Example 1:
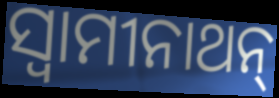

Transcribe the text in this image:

ସ୍ୱାମୀନାଥନ୍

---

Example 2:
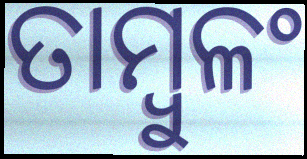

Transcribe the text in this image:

ତାମ୍ବୁଳଂ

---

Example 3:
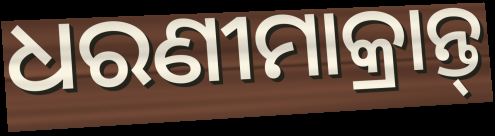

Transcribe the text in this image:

ଧରଣୀମାକ୍ରାନ୍ତ୍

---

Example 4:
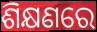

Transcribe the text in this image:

ଶିକ୍ଷଣରେ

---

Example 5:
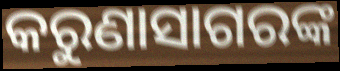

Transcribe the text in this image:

କରୁଣାସାଗରଙ୍କ